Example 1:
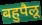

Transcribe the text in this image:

बहुपैलू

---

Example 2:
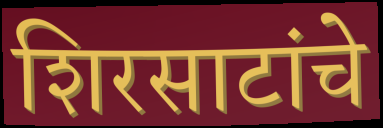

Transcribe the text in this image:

शिरसाटांचे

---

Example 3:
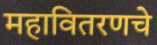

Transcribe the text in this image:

महावितरणचे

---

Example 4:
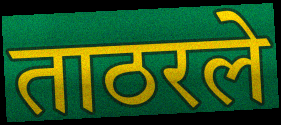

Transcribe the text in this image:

ताठरले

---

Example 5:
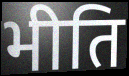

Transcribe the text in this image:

भीति